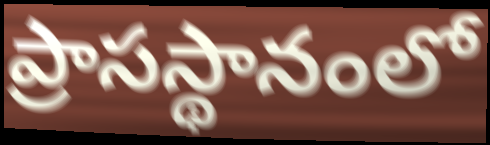
ప్రాసస్థానంలో